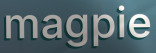
magpie